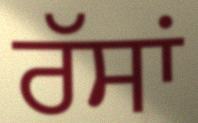
ਰੱਸਾਂ